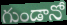
గుండానో